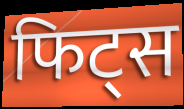
फिट्स